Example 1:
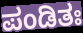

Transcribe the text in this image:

ಪಂಡಿತಃ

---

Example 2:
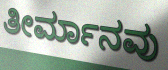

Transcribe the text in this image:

ತೀರ್ಮಾನವು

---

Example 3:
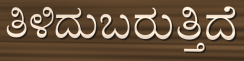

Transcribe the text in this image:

ತಿಳಿದುಬರುತ್ತಿದೆ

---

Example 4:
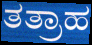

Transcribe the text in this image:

ತತ್ರಾಹ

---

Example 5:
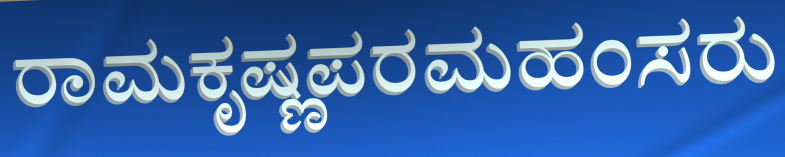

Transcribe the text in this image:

ರಾಮಕೃಷ್ಣಪರಮಹಂಸರು